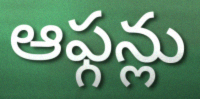
ఆఫ్గన్లు